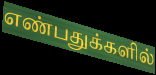
எண்பதுக்களில்